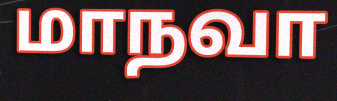
மாநவா